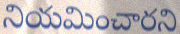
నియమించారని